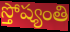
స్తోష్యంతి